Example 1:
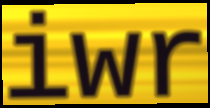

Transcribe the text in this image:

iwr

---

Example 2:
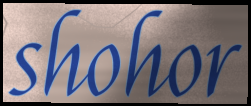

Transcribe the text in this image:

shohor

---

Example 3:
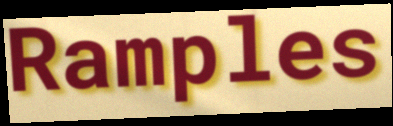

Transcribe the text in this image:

Ramples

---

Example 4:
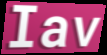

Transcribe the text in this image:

Iav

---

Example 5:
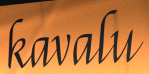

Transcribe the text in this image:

kavalu